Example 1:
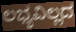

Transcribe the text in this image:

ಲಭ್ಯವಿಲ್ಲದ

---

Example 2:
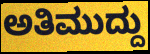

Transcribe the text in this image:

ಅತಿಮುದ್ದು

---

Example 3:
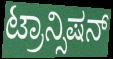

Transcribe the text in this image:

ಟ್ರಾನ್ಸಿಷನ್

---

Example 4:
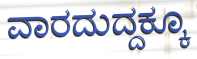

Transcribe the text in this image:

ವಾರದುದ್ದಕ್ಕೂ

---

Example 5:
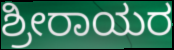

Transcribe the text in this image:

ಶ್ರೀರಾಯರ